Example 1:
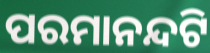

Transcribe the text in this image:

ପରମାନନ୍ଦଟି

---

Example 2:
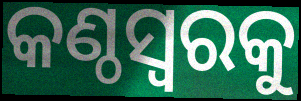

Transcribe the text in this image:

କଣ୍ଠସ୍ୱରକୁ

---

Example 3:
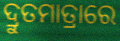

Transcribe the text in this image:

ଦ୍ରୁତମାତ୍ରାରେ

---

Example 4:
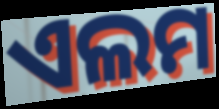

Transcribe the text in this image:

ଏଲମ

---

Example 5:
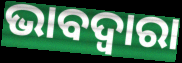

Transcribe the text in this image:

ଭାବଦ୍ଵାରା